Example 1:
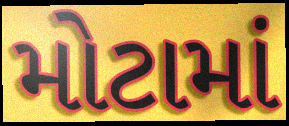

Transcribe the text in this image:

મોટામાં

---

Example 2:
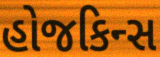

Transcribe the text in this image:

હોજકિન્સ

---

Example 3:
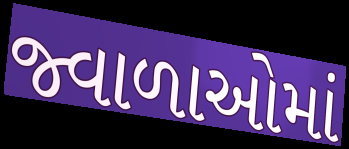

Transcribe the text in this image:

જ્વાળાઓમાં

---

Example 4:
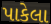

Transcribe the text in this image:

પાકેલા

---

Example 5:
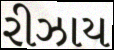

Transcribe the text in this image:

રીઝાય